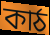
কাঠ